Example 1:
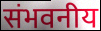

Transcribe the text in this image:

संभवनीय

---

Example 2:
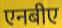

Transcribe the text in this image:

एनबीए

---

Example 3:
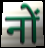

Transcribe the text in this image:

नों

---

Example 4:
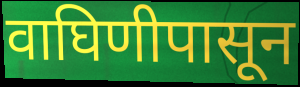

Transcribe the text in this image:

वाघिणीपासून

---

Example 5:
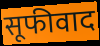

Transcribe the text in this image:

सूफीवाद